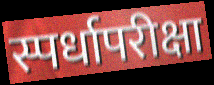
स्पर्धापरीक्षा